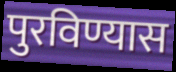
पुरविण्यास